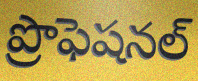
ప్రొఫెషనల్